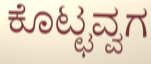
ಕೊಟ್ಟವ್ವಗ